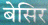
बेसिर